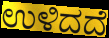
ಉಳಿದದೆ